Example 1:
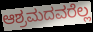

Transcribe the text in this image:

ಆಶ್ರಮದವರೆಲ್ಲ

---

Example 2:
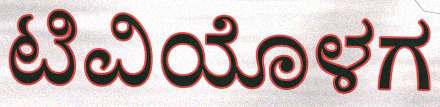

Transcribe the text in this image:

ಟಿವಿಯೊಳಗ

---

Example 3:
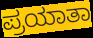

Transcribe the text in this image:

ಪ್ರಯಾತಾ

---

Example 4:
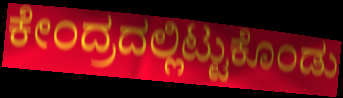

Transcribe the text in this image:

ಕೇಂದ್ರದಲ್ಲಿಟ್ಟುಕೊಂಡು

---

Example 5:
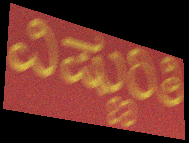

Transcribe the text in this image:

ವಿಷ್ಣುರಿತಿ